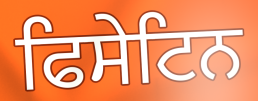
ਫਿਸੇਟਿਨ